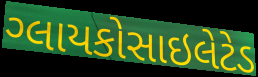
ગ્લાયકોસાઇલેટેડ